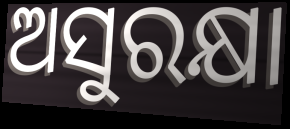
ଅସୁରକ୍ଷା